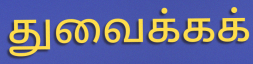
துவைக்கக்